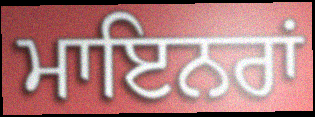
ਮਾਇਨਰਾਂ